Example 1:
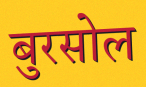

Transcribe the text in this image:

बुरसोल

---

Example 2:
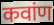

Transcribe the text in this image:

कवांण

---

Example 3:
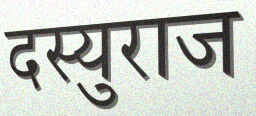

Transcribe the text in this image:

दस्युराज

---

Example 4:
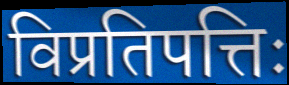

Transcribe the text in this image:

विप्रतिपत्तिः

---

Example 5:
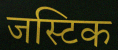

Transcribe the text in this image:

जस्टिक